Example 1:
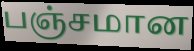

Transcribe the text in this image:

பஞ்சமான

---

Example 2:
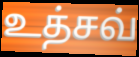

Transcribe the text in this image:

உத்சவ்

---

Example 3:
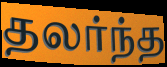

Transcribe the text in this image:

தலர்ந்த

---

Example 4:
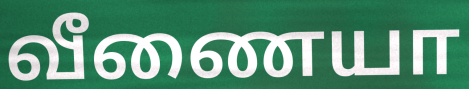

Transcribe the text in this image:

வீணையா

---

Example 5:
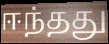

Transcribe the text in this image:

ஈந்தது